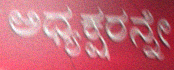
ಅಧ್ಯಕ್ಷರನ್ನೇ